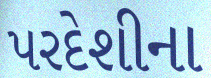
પરદેશીના